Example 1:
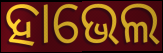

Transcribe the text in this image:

ହାଭେଲ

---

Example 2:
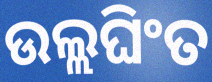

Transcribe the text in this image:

ଉଲ୍ଲଘିଂତ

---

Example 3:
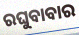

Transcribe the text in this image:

ରଘୁବାବାର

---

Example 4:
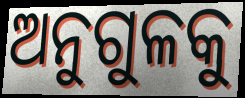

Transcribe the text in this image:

ଅନୁଗୁଳକୁ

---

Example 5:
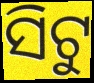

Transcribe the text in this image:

ସିଟୁ